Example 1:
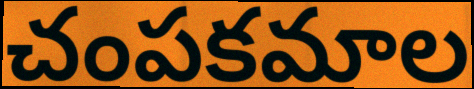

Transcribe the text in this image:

చంపకమాల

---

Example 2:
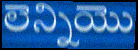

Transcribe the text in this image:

లెన్నియొ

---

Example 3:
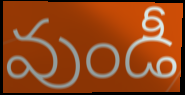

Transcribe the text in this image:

వుండీ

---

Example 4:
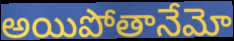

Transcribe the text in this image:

అయిపోతానేమో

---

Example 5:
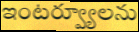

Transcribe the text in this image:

ఇంటర్వ్యూలను